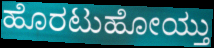
ಹೊರಟುಹೋಯ್ತು